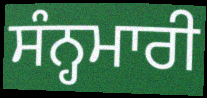
ਸੰਨ੍ਹਮਾਰੀ